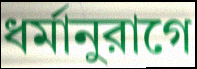
ধর্মানুরাগে